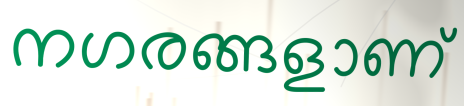
നഗരങ്ങളാണ്